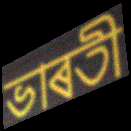
ভাৰতী